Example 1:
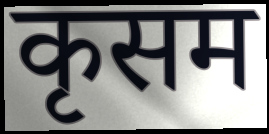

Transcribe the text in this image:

कृसम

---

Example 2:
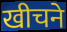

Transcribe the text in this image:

खीचने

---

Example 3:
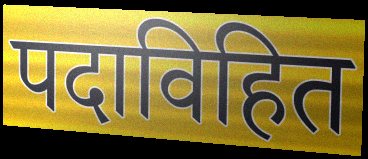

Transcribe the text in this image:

पदाविहित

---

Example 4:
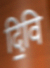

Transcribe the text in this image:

दि॒वि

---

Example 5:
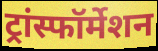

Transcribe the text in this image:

ट्रांस्फॉर्मेशन